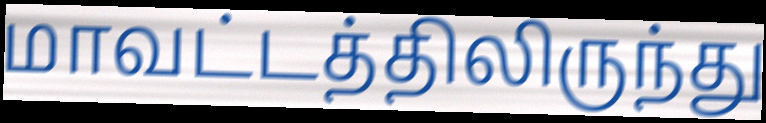
மாவட்டத்திலிருந்து